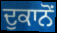
ਦੁਕਾਨੋਂ